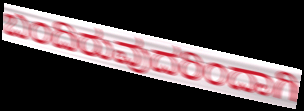
ಬಂದಿರುವುದರಿಂದಾಗಿ